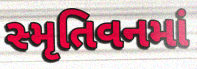
સ્મૃતિવનમાં